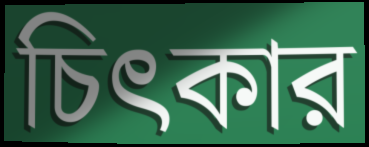
চিৎকার